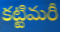
కట్టిమరీ